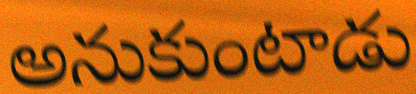
అనుకుంటాడు